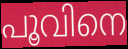
പൂവിനെ